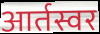
आर्तस्वर